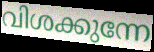
വിശക്കുന്നേ